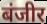
बंजीर